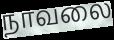
நாவலை